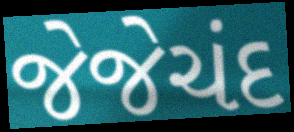
જેજેચંદ